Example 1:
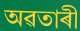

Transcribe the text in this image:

অৱতাৰী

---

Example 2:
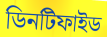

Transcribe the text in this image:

ডিনটিফাইড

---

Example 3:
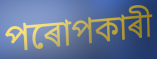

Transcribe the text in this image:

পৰোপকাৰী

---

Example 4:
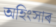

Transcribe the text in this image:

অহিংসাৰ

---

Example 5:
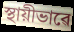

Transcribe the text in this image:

স্থায়ীভাৱে